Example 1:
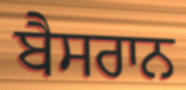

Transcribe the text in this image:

ਬੈਸਰਾਨ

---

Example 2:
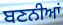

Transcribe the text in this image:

ਬਣਨੀਆਂ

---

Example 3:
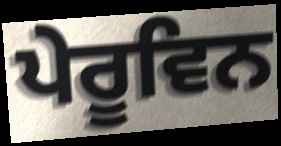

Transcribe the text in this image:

ਪੇਰੂਵਿਨ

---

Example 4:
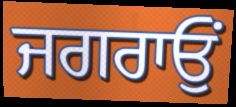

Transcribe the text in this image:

ਜਗਰਾਓੁਂ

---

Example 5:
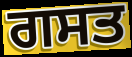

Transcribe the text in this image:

ਗਸਤ